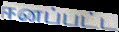
ஈனப்பட்ட